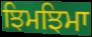
ਝਿਮਝਿਮਾ